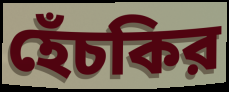
হেঁচকির